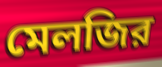
মেলজির